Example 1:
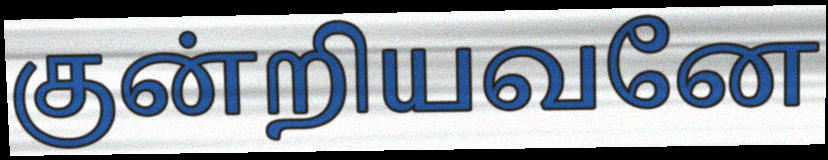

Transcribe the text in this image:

குன்றியவனே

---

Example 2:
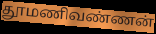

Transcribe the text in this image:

தூமணிவண்ணன்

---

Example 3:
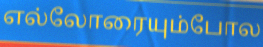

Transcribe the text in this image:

எல்லோரையும்போல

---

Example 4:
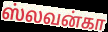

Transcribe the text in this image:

ஸ்லவன்கா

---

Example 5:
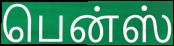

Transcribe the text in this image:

பென்ஸ்